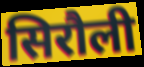
सिरौली